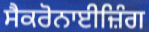
ਸੈਕਰੋਨਾਈਜ਼ਿੰਗ